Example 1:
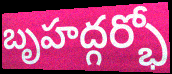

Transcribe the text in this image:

బృహద్గర్భో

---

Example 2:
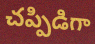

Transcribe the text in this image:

చప్పిడిగా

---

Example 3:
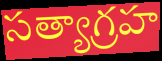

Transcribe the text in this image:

సత్యాగ్రహ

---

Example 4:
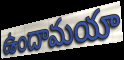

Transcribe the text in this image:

ఉందామయా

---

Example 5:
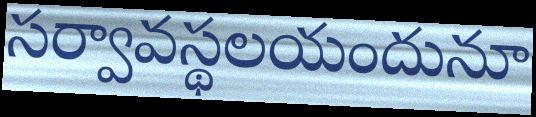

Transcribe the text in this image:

సర్వావస్థలయందునూ